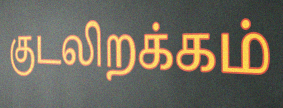
குடலிறக்கம்